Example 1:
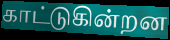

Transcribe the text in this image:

காட்டுகின்றன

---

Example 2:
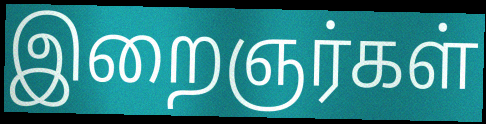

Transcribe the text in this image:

இறைஞர்கள்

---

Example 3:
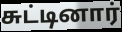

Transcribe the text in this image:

சுட்டினார்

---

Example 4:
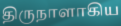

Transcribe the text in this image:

திருநாளாகிய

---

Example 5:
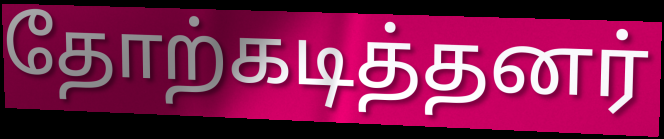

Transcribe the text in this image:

தோற்கடித்தனர்